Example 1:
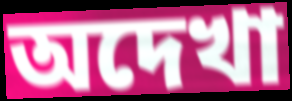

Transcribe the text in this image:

অদেখা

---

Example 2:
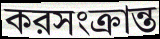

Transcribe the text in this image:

করসংক্রান্ত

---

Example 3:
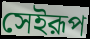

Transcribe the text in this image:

সেইরূপ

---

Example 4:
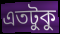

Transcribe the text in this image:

এতটুকু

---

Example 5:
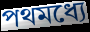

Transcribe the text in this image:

পথমধ্যে